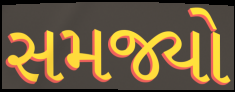
સમજ્યો